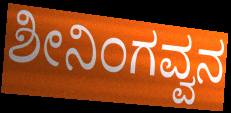
ಶೀನಿಂಗವ್ವನ